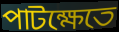
পাটক্ষেতে